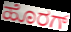
ಹೊರಗ್